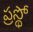
ప్రస్థో